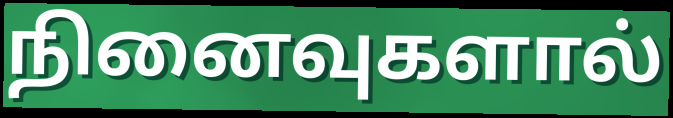
நினைவுகளால்